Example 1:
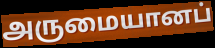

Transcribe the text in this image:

அருமையானப்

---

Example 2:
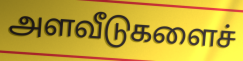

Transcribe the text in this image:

அளவீடுகளைச்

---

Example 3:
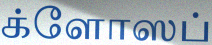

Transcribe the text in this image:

க்ளோஸப்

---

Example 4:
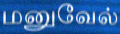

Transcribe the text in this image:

மனுவேல்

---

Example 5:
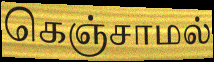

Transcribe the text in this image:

கெஞ்சாமல்